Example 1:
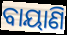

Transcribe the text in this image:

ବାୟାଣି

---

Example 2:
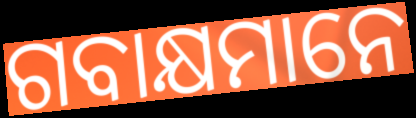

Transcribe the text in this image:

ଗବାକ୍ଷମାନେ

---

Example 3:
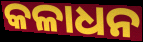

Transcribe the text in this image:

କଳାଧନ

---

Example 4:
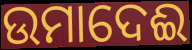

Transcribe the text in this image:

ଉମାଦେଈ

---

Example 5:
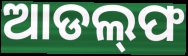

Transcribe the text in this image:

ଆଡଲ୍‌ଫ